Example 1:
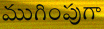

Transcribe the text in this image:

ముగింపుగా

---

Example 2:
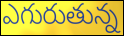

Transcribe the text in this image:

ఎగురుతున్న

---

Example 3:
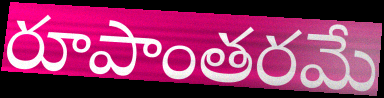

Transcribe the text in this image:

రూపాంతరమే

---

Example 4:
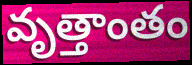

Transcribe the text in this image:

వృత్తాంతం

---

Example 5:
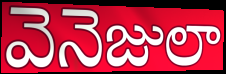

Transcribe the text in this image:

వెనెజులా